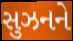
સુઝનને